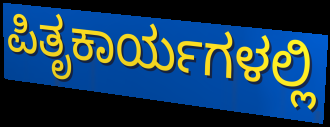
ಪಿತೃಕಾರ್ಯಗಳಲ್ಲಿ